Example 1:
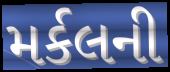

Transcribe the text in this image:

મર્કલની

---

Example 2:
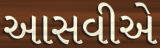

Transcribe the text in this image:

આસવીએ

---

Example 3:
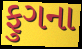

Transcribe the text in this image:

ફુગના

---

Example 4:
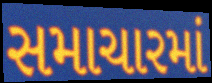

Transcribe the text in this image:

સમાચારમાં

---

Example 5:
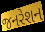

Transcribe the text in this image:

જનરેશન